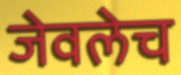
जेवलेच